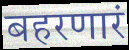
बहरणारं